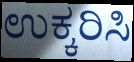
ಉಕ್ಕರಿಸಿ